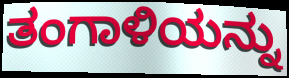
ತಂಗಾಳಿಯನ್ನು